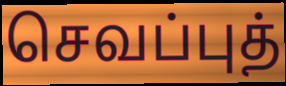
செவப்புத்